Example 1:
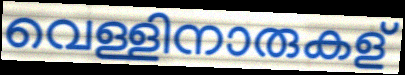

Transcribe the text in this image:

വെള്ളിനാരുകള്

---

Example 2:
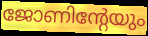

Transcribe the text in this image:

ജോണിന്റേയും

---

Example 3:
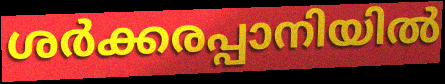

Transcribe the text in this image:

ശർക്കരപ്പാനിയിൽ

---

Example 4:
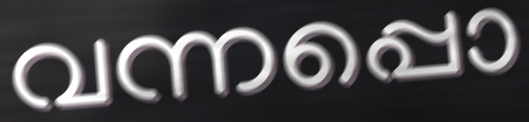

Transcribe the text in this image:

വന്നപ്പൊ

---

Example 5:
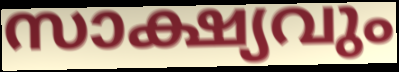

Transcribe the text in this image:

സാക്ഷ്യവും